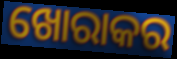
ଖୋରାକର